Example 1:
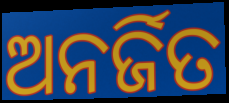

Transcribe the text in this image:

ଅନର୍ଜିତ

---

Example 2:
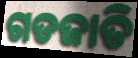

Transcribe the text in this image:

ଗଡଜାତି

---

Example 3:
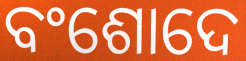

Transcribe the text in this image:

ବଂଶୋଦେ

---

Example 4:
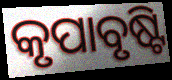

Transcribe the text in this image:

କୃପାବୃଷ୍ଟି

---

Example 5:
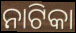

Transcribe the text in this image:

ନାଟିକା